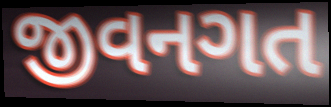
જીવનગત